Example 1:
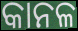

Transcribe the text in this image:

କାନଳ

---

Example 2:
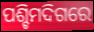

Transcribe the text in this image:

ପଶ୍ଚିମଦିଗରେ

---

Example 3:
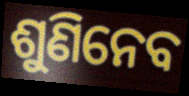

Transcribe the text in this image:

ଶୁଣିନେବ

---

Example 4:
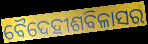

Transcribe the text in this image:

ବୈଦେହୀଶବିଳାସର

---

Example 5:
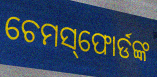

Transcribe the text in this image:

ଚେମସ୍‌ଫୋର୍ଡଙ୍କ